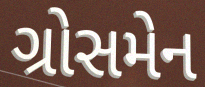
ગ્રોસમેન